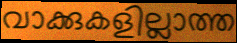
വാക്കുകളില്ലാത്ത